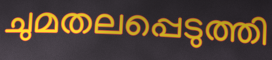
ചുമതലപ്പെടുത്തി